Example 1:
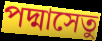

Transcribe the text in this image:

পদ্মাসেতু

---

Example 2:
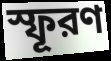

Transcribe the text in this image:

স্ফূরণ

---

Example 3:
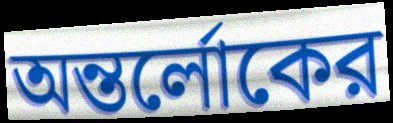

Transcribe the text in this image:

অন্তর্লোকের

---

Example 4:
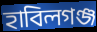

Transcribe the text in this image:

হাবিলগঞ্জ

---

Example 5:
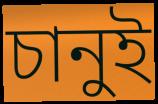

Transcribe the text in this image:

চানুই